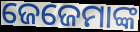
ଜେଜେମାଙ୍କ